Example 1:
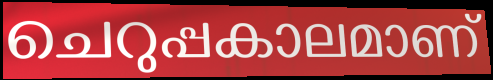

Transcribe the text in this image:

ചെറുപ്പകാലമാണ്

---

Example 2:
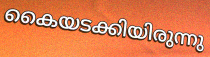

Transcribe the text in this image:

കൈയടക്കിയിരുന്നു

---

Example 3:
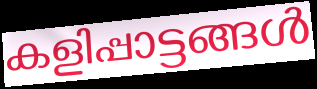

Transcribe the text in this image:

കളിപ്പാട്ടങ്ങൾ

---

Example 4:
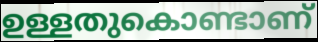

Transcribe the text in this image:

ഉള്ളതുകൊണ്ടാണ്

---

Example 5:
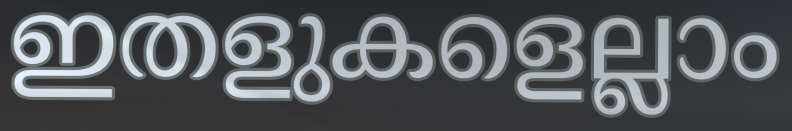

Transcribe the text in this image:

ഇതളുകളെല്ലാം